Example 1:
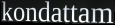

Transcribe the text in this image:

kondattam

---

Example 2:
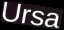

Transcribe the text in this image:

Ursa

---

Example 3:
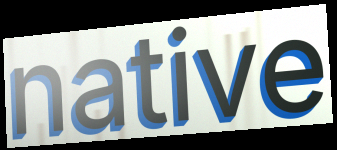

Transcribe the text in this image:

native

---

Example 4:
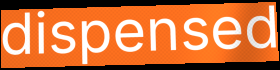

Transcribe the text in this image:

dispensed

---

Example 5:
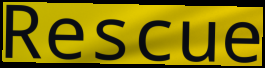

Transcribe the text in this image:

Rescue